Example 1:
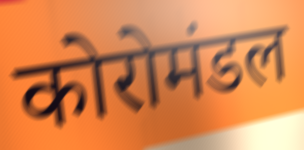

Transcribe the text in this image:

कोरोमंडल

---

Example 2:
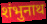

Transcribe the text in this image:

शंभुनाथ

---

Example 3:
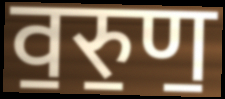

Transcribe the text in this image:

व॒रु॒ण॒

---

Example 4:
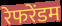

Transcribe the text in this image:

रेफरेंडम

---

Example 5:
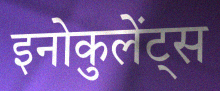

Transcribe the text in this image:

इनोकुलेंट्स